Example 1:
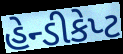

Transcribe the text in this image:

હેન્ડીકેપ્ટ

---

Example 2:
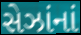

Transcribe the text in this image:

સેઝાંનાં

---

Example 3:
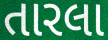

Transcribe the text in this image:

તારલા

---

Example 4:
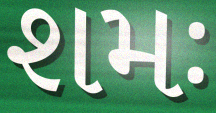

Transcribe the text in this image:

શમઃ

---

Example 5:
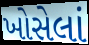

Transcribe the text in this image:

ખોસેલાં